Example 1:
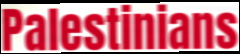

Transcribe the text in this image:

Palestinians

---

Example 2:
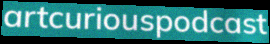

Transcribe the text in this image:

artcuriouspodcast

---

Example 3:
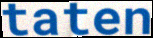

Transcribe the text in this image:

taten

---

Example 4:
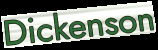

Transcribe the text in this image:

Dickenson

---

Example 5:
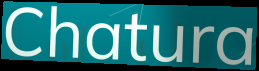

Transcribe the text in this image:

Chatura